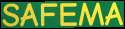
SAFEMA